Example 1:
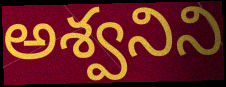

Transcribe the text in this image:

అశ్వనిని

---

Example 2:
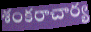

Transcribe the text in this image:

శంకరాచార్య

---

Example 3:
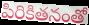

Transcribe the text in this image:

పిరికితనంతో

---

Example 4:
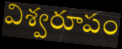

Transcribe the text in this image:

విశ్వరూపం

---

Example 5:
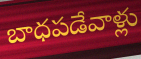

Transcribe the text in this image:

బాధపడేవాళ్లు